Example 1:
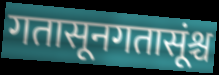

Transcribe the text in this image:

गतासूनगतासूंश्च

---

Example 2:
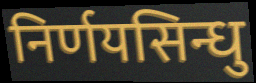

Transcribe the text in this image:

निर्णयसिन्धु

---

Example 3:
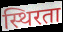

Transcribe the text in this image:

स्थिरता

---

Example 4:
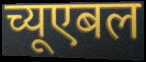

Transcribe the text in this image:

च्यूएबल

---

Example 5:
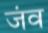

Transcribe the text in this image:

जंव